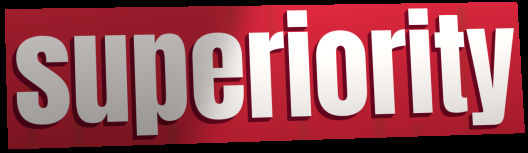
superiority